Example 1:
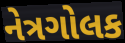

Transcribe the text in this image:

નેત્રગોલક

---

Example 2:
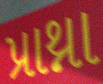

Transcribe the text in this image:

પ્રાથ્ના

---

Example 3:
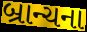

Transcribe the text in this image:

બ્રાન્ચના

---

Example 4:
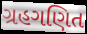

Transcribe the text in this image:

ગ્રહગણિત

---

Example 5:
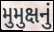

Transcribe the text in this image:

મુમુક્ષનું